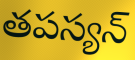
తపస్యన్